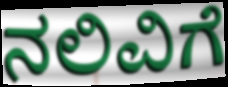
ನಲಿವಿಗೆ